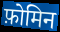
फ़ोमिन